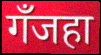
गँजहा